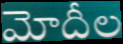
మోదీల